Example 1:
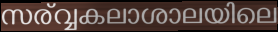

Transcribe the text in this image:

സര്വ്വകലാശാലയിലെ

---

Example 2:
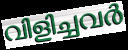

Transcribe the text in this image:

വിളിച്ചവർ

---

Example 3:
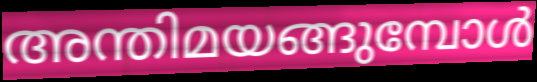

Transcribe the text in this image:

അന്തിമയങ്ങുമ്പോൾ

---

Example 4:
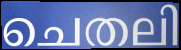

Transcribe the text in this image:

ചെതലി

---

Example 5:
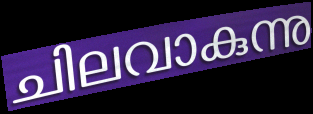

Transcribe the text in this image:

ചിലവാകുന്നു